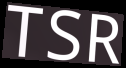
TSR